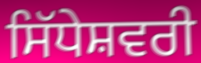
ਸਿੱਧੇਸ਼ਵਰੀ